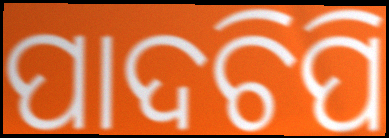
ପାଦଚିପି